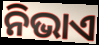
ନିଭାଏ